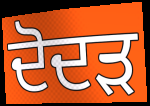
ਦੋਦੜ